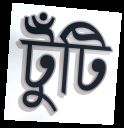
টুঁটি